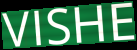
VISHE